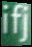
ifj